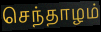
செந்தாழம்